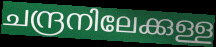
ചന്ദ്രനിലേക്കുള്ള